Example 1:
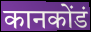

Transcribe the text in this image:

कानकोंडं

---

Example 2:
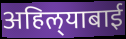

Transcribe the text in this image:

अहिल्याबाई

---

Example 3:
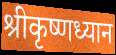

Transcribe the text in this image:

श्रीकृष्णध्यान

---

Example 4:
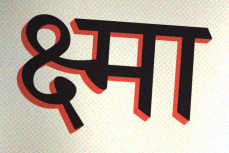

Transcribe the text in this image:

क्ष्मा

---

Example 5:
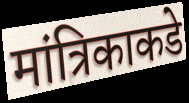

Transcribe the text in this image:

मांत्रिकाकडे